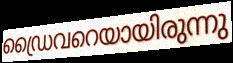
ഡ്രൈവറെയായിരുന്നു